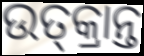
ଉତ୍‌କ୍ରାନ୍ତ